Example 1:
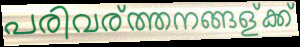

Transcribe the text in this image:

പരിവര്ത്തനങ്ങള്ക്ക്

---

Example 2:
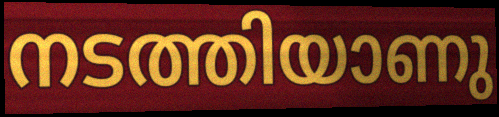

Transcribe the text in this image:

നടത്തിയാണു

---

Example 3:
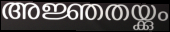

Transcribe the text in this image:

അജ്ഞതയ്ക്കും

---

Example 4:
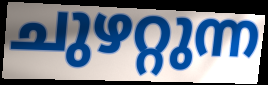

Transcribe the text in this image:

ചുഴറ്റുന്ന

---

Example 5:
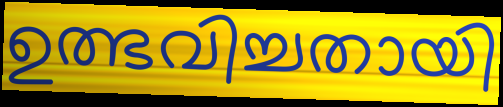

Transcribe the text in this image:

ഉത്ഭവിച്ചതായി